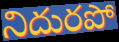
నిదురపో